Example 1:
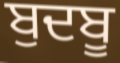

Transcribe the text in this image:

ਬੁਦਬੂ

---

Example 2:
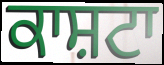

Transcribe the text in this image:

ਕਾਸ਼ਟਾ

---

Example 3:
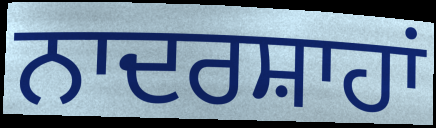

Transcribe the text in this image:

ਨਾਦਰਸ਼ਾਹਾਂ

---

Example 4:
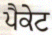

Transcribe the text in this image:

ਪੈਕੇਟ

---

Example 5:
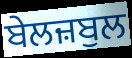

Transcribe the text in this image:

ਬੇਲਜ਼ਬੁਲ